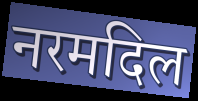
नरमदिल